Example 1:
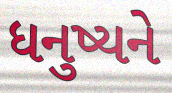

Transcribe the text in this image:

ધનુષ્યને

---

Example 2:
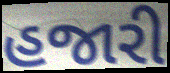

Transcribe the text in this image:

હજારી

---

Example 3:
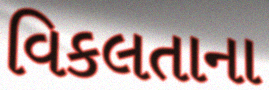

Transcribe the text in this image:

વિકલતાના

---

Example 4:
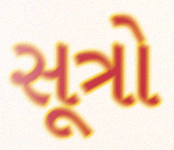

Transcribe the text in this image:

સૂત્રો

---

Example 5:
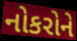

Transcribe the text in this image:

નોકરોને